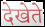
देखेते